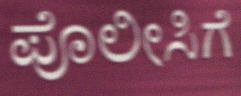
ಪೊಲೀಸಿಗೆ